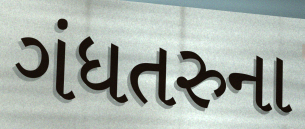
ગંધતરુના